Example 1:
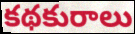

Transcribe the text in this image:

కథకురాలు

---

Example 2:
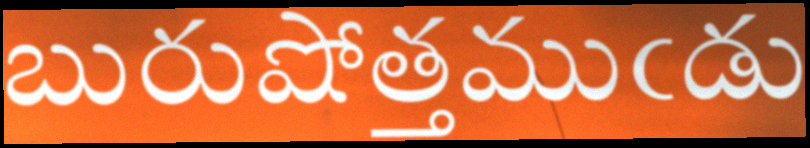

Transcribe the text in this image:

బురుషోత్తముఁడు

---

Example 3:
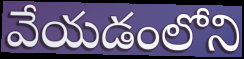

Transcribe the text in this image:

వేయడంలోని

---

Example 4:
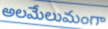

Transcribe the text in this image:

అలమేలుమంగా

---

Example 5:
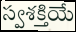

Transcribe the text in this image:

స్వశక్తియే